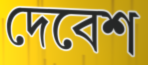
দেবেশ